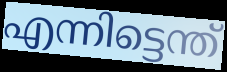
എന്നിട്ടെന്ത്